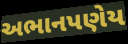
અભાનપણેય